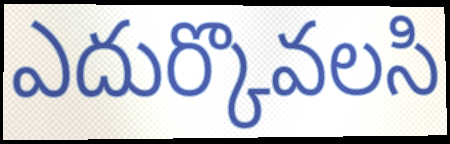
ఎదుర్కొవలసి